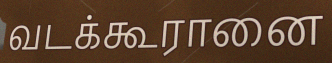
வடக்கூரானை